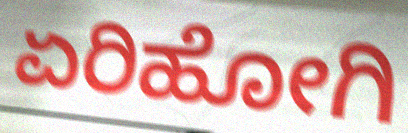
ಏರಿಹೋಗಿ